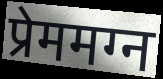
प्रेममग्न